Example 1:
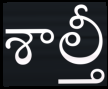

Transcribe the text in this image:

శాల్తీ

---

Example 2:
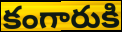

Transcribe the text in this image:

కంగారుకి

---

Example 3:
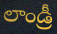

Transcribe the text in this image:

లాండ్రీ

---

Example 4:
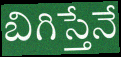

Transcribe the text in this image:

బిగిస్తేనే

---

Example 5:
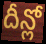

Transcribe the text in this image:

దీన్లో